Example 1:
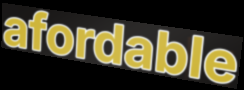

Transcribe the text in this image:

afordable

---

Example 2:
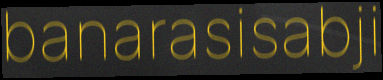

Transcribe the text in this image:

banarasisabji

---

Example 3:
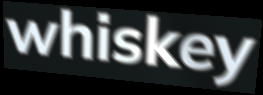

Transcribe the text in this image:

whiskey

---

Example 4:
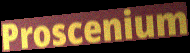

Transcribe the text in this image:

Proscenium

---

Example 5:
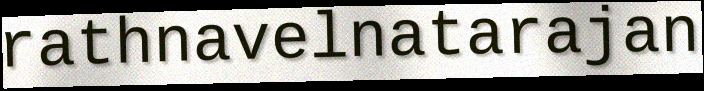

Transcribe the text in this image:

rathnavelnatarajan